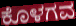
ಕೊಳಗವ